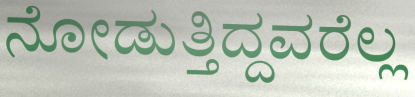
ನೋಡುತ್ತಿದ್ದವರೆಲ್ಲ